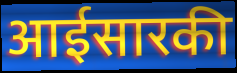
आईसारकी